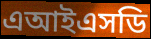
এআইএসডি